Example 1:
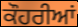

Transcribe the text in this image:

ਕੌਹਰੀਆਂ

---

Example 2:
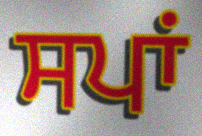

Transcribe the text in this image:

ਸਪਾਂ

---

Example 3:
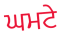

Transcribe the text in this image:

ਘਮਟੇ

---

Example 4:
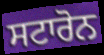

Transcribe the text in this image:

ਸਟਾਰੋਨ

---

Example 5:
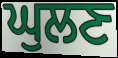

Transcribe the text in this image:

ਘੁਲਣ